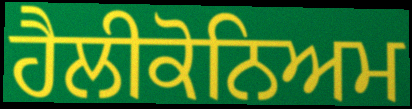
ਹੈਲੀਕੋਨਿਅਮ